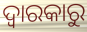
ଦ୍ଵାରକାରୁ